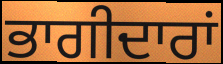
ਭਾਗੀਦਾਰਾਂ